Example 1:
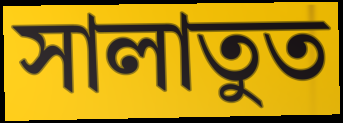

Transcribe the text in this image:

সালাতুত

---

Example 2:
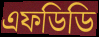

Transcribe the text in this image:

এফডিডি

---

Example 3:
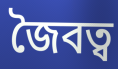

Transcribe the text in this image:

জৈবত্ব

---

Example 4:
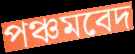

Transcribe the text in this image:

পঞ্চমবেদ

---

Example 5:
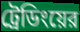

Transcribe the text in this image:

ট্রেডিংয়ের